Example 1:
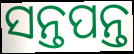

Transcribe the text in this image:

ସନ୍ତପନ୍ତ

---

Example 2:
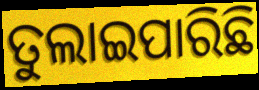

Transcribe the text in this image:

ତୁଲାଇପାରିଛି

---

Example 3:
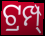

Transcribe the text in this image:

ଟ୍ରମ୍ପ୍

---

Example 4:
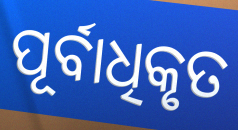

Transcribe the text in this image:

ପୂର୍ବାଧିକୃତ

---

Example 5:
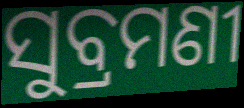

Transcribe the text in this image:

ସୁବ୍ରମଣୀ